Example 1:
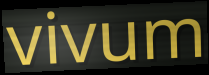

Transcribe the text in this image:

vivum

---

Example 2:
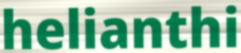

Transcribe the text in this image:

helianthi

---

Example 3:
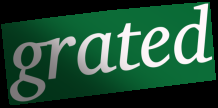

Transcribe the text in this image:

grated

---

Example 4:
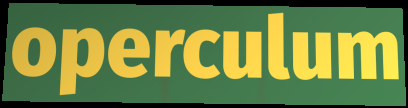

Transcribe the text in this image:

operculum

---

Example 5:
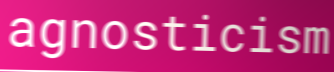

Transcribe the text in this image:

agnosticism